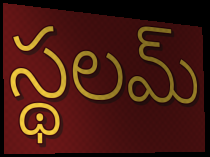
స్థలమ్